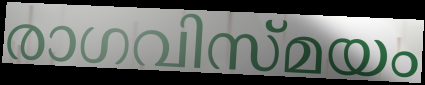
രാഗവിസ്മയം